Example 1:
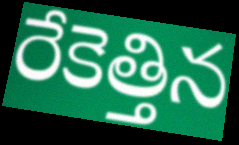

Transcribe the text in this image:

రేకెత్తిన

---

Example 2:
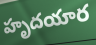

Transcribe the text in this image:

హృదయార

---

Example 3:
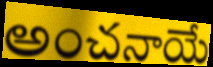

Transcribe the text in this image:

అంచనాయే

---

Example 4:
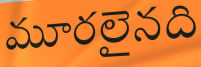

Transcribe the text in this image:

మూరలైనది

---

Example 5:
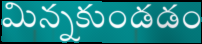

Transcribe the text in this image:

మిన్నకుండడం